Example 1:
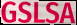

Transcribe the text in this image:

GSLSA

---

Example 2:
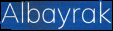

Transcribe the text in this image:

Albayrak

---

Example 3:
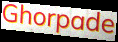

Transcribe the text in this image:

Ghorpade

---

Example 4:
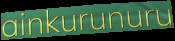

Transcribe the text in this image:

ainkurunuru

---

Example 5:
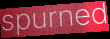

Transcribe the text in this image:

spurned